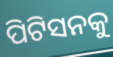
ପିଟିସନକୁ